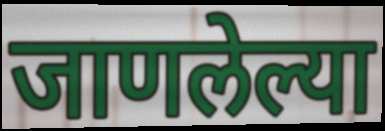
जाणलेल्या